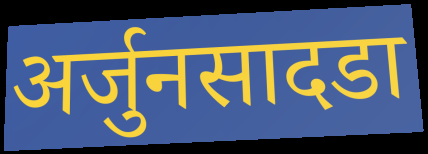
अर्जुनसादडा